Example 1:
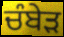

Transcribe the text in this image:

ਚੰਬੇੜ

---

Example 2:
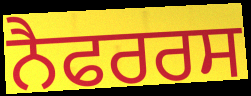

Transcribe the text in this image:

ਨੈਫਰਰਸ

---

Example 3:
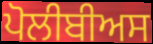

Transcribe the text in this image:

ਪੋਲੀਬੀਅਸ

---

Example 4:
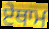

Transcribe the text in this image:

ਏਥਾਮ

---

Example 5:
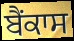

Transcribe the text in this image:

ਬੈਂਕਾਸ